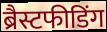
ब्रैस्टफीडिंग